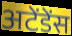
अटेंडेंस